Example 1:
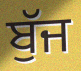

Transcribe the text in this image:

ਬੁੱਜ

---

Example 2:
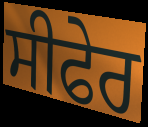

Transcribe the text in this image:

ਸੀਫੇਰ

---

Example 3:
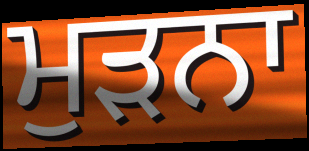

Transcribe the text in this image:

ਮੁੜਨਾ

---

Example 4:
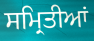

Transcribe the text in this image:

ਸਮ੍ਰਿਤੀਆਂ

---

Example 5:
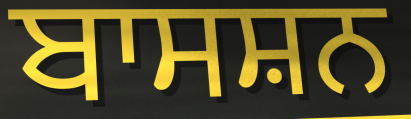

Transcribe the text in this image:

ਬਾਸਸ਼ਨ